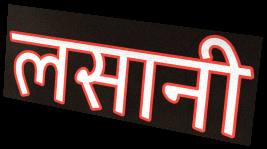
लसानी